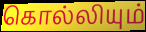
கொல்லியும்